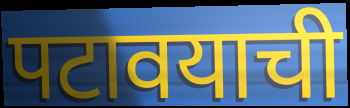
पटावयाची